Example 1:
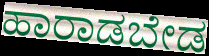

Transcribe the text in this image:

ಹಾರಾಡಬೇಡ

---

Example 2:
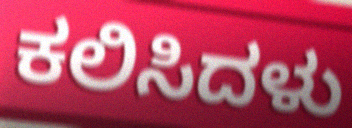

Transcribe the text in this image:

ಕಲಿಸಿದಳು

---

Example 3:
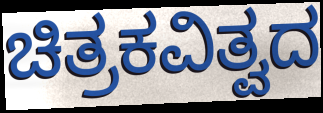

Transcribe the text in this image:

ಚಿತ್ರಕವಿತ್ವದ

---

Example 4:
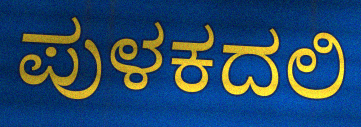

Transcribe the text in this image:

ಪುಳಕದಲಿ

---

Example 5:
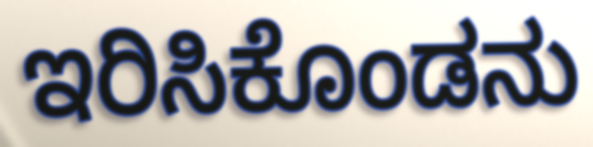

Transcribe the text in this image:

ಇರಿಸಿಕೊಂಡನು